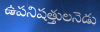
ఉపనిషత్తులనెడు